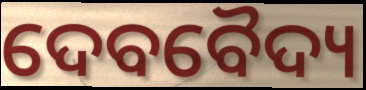
ଦେବବୈଦ୍ୟ